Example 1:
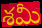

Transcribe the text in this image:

శమీ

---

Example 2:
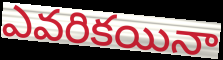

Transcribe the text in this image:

ఎవరికయినా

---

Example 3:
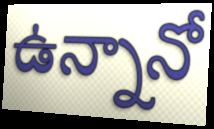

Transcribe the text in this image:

ఉన్నానో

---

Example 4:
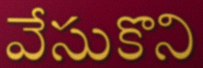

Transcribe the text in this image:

వేసుకొని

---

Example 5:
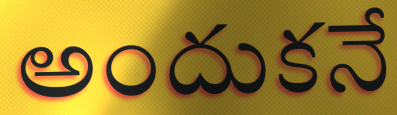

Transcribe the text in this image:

అందుకనే